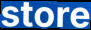
store